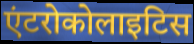
एंटरोकोलाइटिस